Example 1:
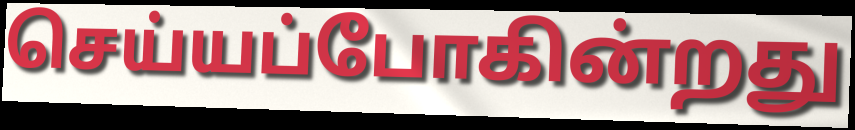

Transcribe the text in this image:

செய்யப்போகின்றது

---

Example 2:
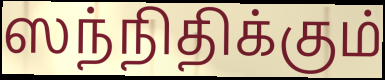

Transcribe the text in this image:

ஸந்நிதிக்கும்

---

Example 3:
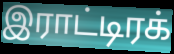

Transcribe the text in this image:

இராட்டிரக்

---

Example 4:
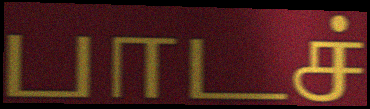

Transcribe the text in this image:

பாடச்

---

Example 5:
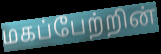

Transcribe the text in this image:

மகப்பேற்றின்